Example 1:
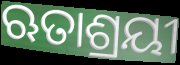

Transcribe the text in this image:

ଋତାଶ୍ରୟୀ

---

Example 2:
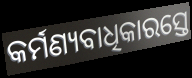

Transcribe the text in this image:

କର୍ମଣ୍ୟବାଧିକାରସ୍ତେ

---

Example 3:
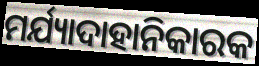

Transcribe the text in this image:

ମର୍ଯ୍ୟାଦାହାନିକାରକ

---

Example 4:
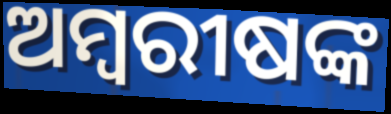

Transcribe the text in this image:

ଅମ୍ବରୀଷଙ୍କ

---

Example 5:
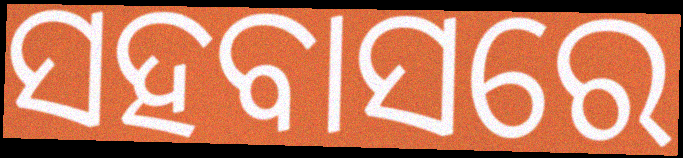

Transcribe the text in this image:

ସହବାସରେ